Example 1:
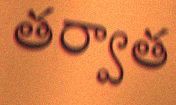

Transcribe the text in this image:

తర్వాత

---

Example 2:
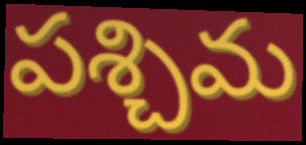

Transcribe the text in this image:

పశ్చిమ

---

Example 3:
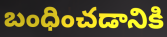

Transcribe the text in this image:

బంధించడానికి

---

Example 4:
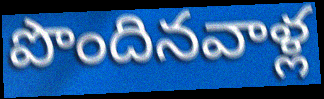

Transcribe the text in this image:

పొందినవాళ్ల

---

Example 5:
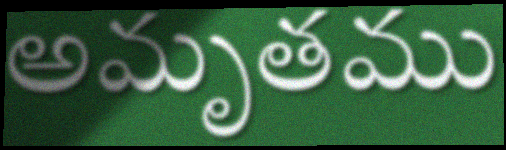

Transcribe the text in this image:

అమృతము